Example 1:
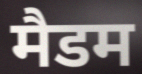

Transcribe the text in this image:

मैडम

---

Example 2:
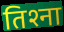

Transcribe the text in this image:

तिश्ना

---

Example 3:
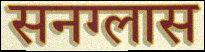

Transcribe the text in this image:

सनग्लास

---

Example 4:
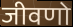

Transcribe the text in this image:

जीवणो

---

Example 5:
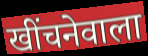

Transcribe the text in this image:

खींचनेवाला